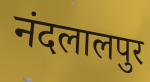
नंदलालपुर